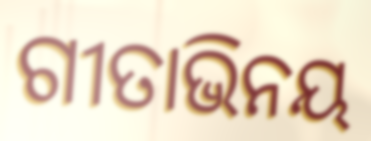
ଗୀତାଭିନୟ